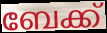
ബേക്ക്